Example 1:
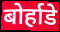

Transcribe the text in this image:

बोर्हाडे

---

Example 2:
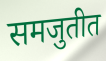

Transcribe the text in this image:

समजुतीत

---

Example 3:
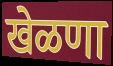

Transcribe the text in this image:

खेळणा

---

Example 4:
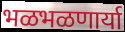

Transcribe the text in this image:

भळभळणार्या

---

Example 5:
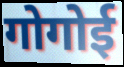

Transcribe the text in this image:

गोगोई